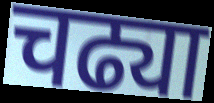
चढ्या